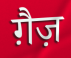
ग़ैज़